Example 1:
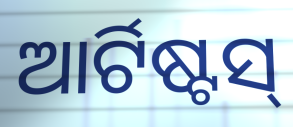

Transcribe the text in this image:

ଆର୍ଟିଷ୍ଟସ୍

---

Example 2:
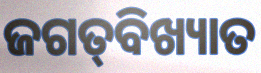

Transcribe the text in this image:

ଜଗତ୍‌ବିଖ୍ୟାତ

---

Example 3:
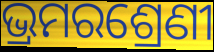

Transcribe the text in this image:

ଭ୍ରମରଶ୍ରେଣୀ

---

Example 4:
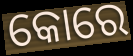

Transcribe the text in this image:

କୋରେ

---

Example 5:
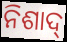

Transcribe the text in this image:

ନିଶାଦ୍